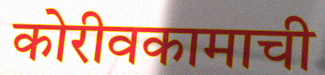
कोरीवकामाची